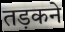
तड़कने